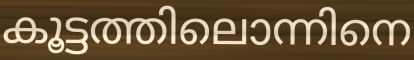
കൂട്ടത്തിലൊന്നിനെ